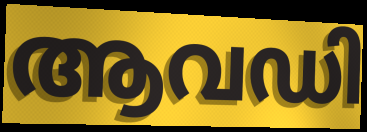
ആവഡി